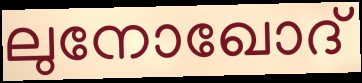
ലുനോഖോദ്